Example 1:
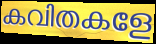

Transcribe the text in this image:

കവിതകളേ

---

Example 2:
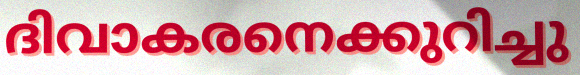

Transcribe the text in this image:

ദിവാകരനെക്കുറിച്ചു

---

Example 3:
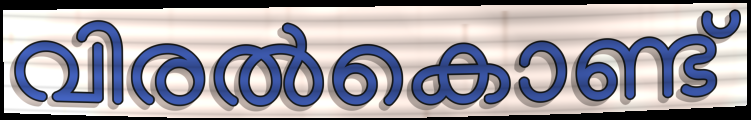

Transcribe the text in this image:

വിരൽകൊണ്ട്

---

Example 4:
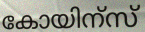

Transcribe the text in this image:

കോയിന്സ്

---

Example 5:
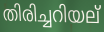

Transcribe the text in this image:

തിരിച്ചറിയല്